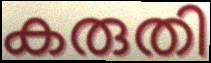
കരുതി